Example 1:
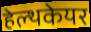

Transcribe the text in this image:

हेल्थकेयर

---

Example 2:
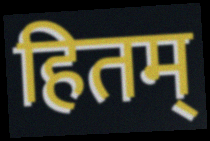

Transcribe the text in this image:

हितम्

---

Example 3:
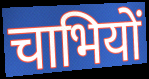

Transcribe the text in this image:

चाभियों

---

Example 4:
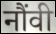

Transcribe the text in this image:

नौंवी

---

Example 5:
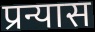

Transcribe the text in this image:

प्रन्यास